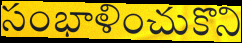
సంభాళించుకొని